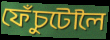
ফেঁচুটোলৈ